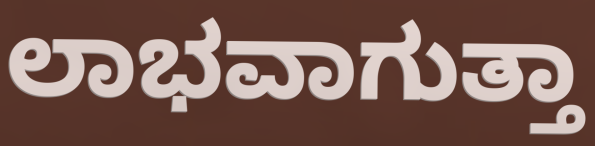
ಲಾಭವಾಗುತ್ತಾ